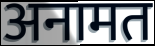
अनामत